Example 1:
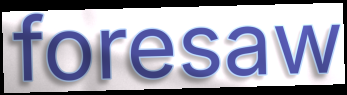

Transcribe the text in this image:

foresaw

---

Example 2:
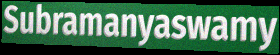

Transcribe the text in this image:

Subramanyaswamy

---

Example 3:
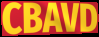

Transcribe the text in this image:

CBAVD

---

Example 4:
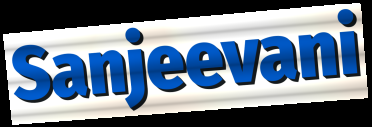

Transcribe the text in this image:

Sanjeevani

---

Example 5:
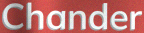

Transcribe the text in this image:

Chander